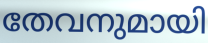
തേവനുമായി